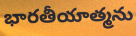
భారతీయాత్మను